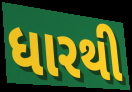
ધારથી